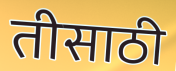
तीसाठी